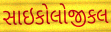
સાઇકોલોજીકલ